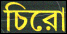
চিরো